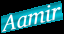
Aamir